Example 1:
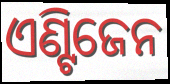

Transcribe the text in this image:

ଏଣ୍ଟିଜେନ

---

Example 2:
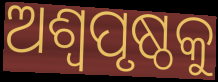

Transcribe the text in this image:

ଅଶ୍ୱପୃଷ୍ଠକୁ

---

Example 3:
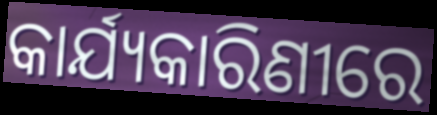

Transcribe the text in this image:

କାର୍ଯ୍ୟକାରିଣୀରେ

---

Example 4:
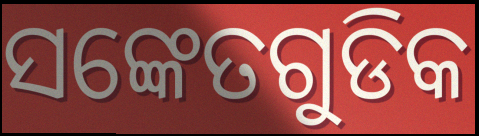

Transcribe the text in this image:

ସଙ୍କେତଗୁଡିକ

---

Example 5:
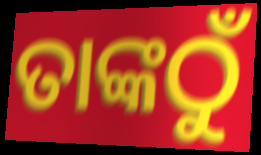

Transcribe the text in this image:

ତାଙ୍କଠୁଁ